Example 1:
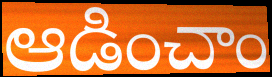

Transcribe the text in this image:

ఆడించాం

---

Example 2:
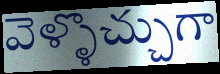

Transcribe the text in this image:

వెళ్ళొచ్చుగా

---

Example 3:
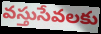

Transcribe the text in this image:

వస్తుసేవలకు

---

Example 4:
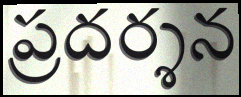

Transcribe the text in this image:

ప్రదర్శన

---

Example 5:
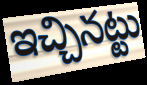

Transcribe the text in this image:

ఇచ్చినట్టు